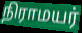
நிராமயர்